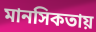
মানসিকতায়